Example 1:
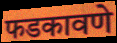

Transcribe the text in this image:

फडकावणे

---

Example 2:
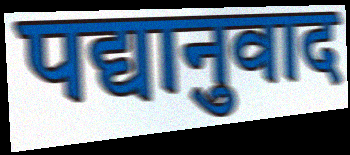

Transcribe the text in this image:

पद्यानुवाद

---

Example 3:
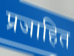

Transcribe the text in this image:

प्रजाहित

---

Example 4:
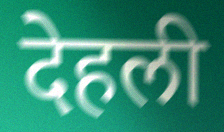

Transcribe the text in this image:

देहली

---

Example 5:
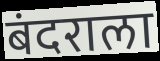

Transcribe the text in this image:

बंदराला